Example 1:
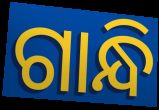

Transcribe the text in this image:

ଗାନ୍ଧି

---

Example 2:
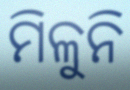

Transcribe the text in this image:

ମିଳୁନି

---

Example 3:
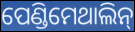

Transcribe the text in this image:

ପେଣ୍ଡିମେଥାଲିନ୍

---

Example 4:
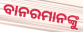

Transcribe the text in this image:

ବାନରମାନଙ୍କୁ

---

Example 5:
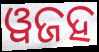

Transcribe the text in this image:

ୱଜହ